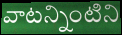
వాటన్నింటిని